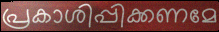
പ്രകാശിപ്പിക്കണമേ